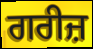
ਗਰੀਜ਼